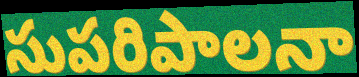
సుపరిపాలనా